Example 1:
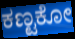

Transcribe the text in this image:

ಕಣ್ಟಕೋ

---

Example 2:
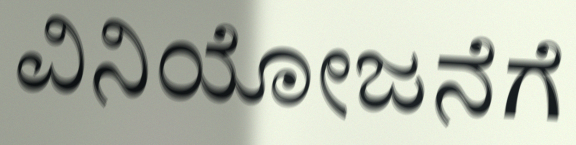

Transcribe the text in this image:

ವಿನಿಯೋಜನೆಗೆ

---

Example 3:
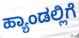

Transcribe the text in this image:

ಹ್ಯಾಂಡಲ್ಲಿಗೆ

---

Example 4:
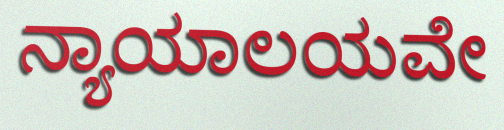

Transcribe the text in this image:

ನ್ಯಾಯಾಲಯವೇ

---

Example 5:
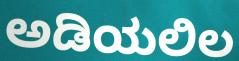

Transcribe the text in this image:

ಅಡಿಯಲಿಲ